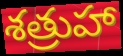
శత్రుహా